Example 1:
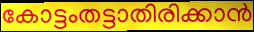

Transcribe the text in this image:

കോട്ടംതട്ടാതിരിക്കാൻ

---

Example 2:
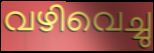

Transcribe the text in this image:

വഴിവെച്ചു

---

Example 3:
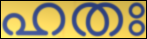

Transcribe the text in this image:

ഹതഃ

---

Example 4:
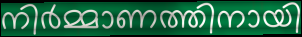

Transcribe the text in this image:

നിർമ്മാണത്തിനായി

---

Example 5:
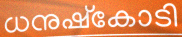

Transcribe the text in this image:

ധനുഷ്കോടി